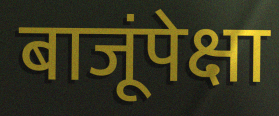
बाजूंपेक्षा